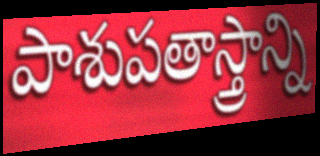
పాశుపతాస్త్రాన్ని